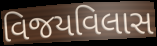
વિજયવિલાસ